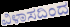
ವಿಳಾಸದಿಂದ